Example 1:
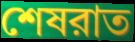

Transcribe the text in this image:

শেষরাত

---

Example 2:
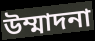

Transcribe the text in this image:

উম্মাদনা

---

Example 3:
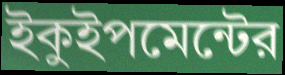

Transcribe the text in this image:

ইকুইপমেন্টের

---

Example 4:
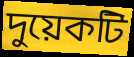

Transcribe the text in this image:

দুয়েকটি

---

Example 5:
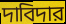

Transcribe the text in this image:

দাবিদার